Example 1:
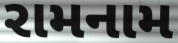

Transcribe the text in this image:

રામનામ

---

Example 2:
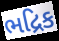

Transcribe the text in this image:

ભદ્રિક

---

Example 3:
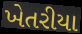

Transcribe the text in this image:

ખેતરીયા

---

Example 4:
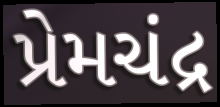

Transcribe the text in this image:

પ્રેમચંદ્ર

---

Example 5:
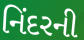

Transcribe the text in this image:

નિંદરની